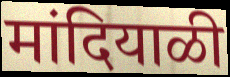
मांदियाळी